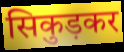
सिकुड़कर